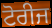
ਟੋਰੀਜ